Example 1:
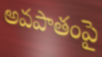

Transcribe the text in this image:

అవపాతంపై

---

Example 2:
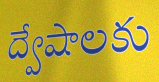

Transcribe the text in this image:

ద్వేషాలకు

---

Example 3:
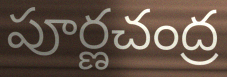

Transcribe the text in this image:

పూర్ణచంద్ర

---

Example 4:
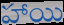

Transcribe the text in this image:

హాయి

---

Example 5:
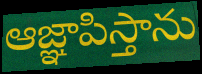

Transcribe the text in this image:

ఆజ్ఞాపిస్తాను